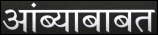
आंब्याबाबत